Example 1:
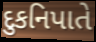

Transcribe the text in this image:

દુકનિપાતે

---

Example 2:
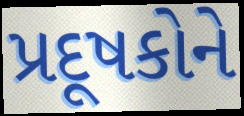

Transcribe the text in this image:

પ્રદૂષકોને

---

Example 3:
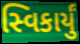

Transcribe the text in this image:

સ્વિકાર્યું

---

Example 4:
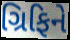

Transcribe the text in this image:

ગ્રિફિને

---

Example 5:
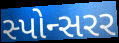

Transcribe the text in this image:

સ્પોન્સરર